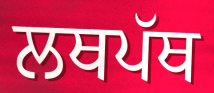
ਲਥਪੱਥ